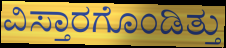
ವಿಸ್ತಾರಗೊಂಡಿತ್ತು